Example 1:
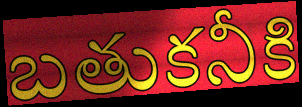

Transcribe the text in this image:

బతుకనీకి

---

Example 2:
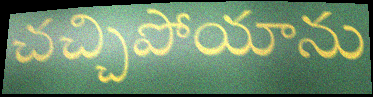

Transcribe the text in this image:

చచ్చిపోయాను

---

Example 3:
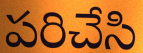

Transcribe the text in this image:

పరిచేసి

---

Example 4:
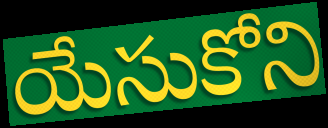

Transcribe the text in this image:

యేసుకోని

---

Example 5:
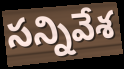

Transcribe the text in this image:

సన్నివేశ